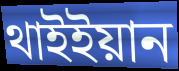
থাইইয়ান